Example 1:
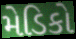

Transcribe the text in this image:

મેડિકો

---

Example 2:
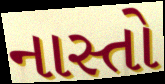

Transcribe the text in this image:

નાસ્તો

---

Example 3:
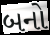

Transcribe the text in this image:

બનો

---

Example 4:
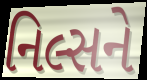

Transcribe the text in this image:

નિલ્સને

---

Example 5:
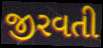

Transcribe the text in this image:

જીરવતી